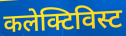
कलेक्टिविस्ट